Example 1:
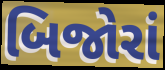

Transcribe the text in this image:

બિજોરાં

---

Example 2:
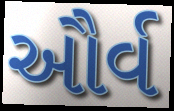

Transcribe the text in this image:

ઔર્વ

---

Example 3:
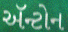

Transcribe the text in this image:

ઍન્ટોન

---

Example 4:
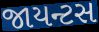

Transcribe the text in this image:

જાયન્ટસ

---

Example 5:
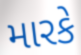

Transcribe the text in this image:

મારકે